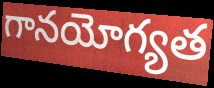
గానయోగ్యత